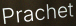
Prachet